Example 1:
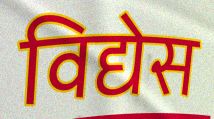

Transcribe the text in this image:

विद्येस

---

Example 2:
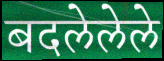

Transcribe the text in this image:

बदलेलेले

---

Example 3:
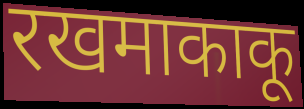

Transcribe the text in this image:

रखमाकाकू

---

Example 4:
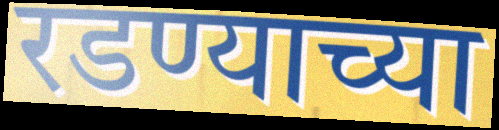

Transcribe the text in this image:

रडण्याच्या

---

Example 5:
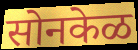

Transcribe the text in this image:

सोनकेळ